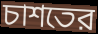
চাশতের